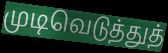
முடிவெடுத்துத்